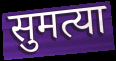
सुमत्या